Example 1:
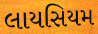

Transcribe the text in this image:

લાયસિયમ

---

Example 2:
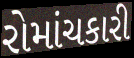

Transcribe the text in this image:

રોમાંચકારી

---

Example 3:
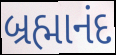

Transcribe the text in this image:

બ્રહ્માનંદ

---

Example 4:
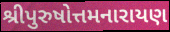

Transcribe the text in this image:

શ્રીપુરુષોત્તમનારાયણ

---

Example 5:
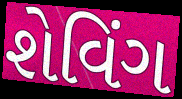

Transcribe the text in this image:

શેવિંગ